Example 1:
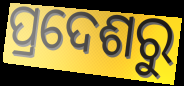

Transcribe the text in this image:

ପ୍ରଦେଶରୁ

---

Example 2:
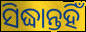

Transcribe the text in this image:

ସିଦ୍ଧାନ୍ତହିଁ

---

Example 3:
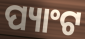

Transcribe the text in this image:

ପ୍ୟାଂଟ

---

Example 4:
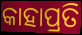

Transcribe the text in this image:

କାହାପ୍ରତି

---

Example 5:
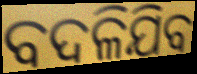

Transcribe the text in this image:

ବଦଳିଯିବ